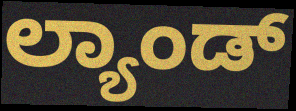
ಲ್ಯಾಂಡ್